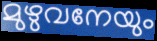
മുഴുവനേയും